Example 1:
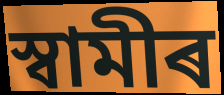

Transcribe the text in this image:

স্বামীৰ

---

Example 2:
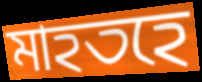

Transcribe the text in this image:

মাহতহে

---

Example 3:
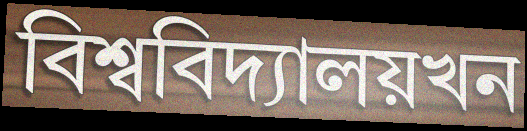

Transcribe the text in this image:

বিশ্ববিদ্যালয়খন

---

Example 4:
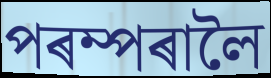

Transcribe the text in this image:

পৰম্পৰালৈ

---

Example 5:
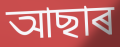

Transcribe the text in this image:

আছাৰ